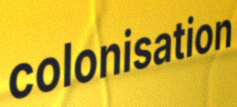
colonisation